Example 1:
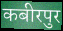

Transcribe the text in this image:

कबीरपुर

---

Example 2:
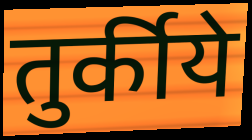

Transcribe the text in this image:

तुर्कीये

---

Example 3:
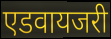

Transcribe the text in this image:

एडवायजरी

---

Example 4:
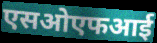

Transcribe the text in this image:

एसओएफआई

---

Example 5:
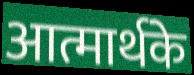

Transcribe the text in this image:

आत्मार्थके